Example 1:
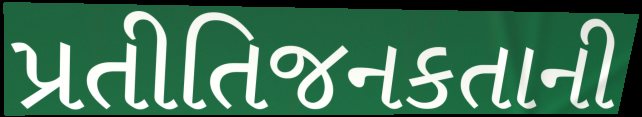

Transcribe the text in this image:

પ્રતીતિજનકતાની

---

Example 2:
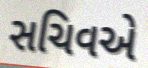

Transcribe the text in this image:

સચિવએ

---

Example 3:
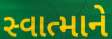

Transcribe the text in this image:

સ્વાત્માને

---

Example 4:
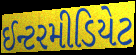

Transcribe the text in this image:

ઈન્ટરમીડિયેટ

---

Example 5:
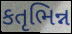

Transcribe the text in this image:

કતૃભિન્ન